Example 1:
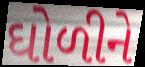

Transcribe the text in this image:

ઘોળીને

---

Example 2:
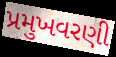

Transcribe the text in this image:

પ્રમુખવરણી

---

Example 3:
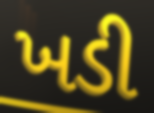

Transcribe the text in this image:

ખડી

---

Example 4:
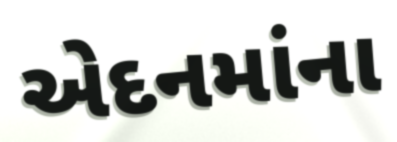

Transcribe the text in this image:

એદનમાંના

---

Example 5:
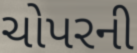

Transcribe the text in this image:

ચોપરની